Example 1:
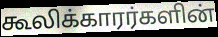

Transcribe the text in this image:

கூலிக்காரர்களின்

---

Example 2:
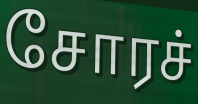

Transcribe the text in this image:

சோரச்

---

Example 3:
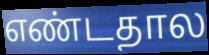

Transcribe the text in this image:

எண்டதால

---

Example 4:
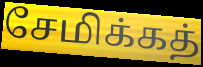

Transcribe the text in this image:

சேமிக்கத்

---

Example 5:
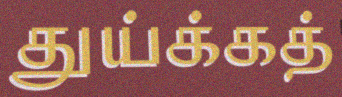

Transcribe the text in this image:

துய்க்கத்